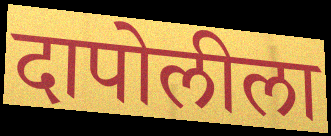
दापोलीला